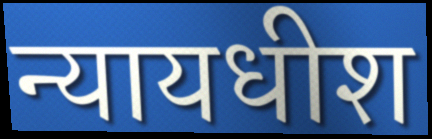
न्यायधीश